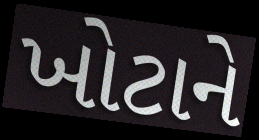
ખોટાને